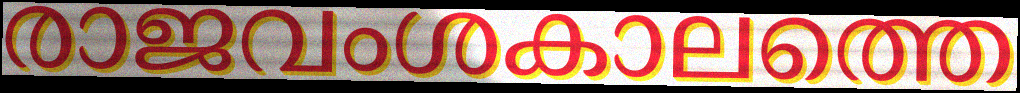
രാജവംശകാലത്തെ